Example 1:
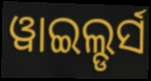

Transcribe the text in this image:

ୱାଇଲ୍ଡର୍ସ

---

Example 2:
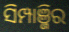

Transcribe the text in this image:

ସିମ୍ପାଞ୍ଜିର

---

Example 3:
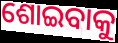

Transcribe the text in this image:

ଶୋଇବାକୁ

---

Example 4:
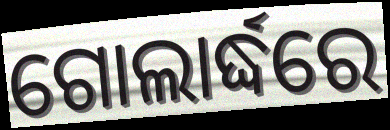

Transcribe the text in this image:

ଗୋଲାର୍ଦ୍ଧରେ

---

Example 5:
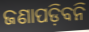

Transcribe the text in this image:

ଜଣାପଡ଼ିବନି